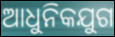
ଆଧୁନିକଯୁଗ